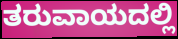
ತರುವಾಯದಲ್ಲಿ